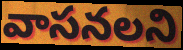
వాసనలని